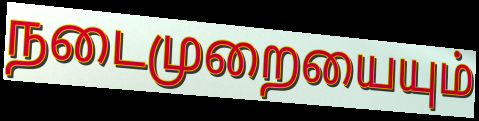
நடைமுறையையும்